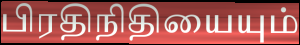
பிரதிநிதியையும்